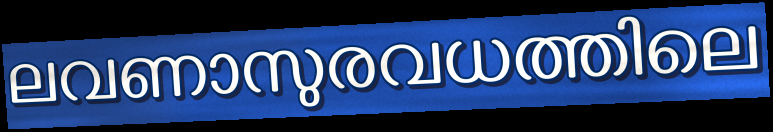
ലവണാസുരവധത്തിലെ